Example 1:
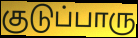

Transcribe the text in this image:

குடுப்பாரு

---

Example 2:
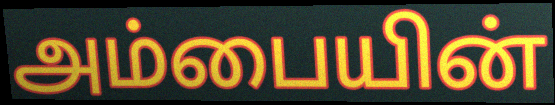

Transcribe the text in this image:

அம்பையின்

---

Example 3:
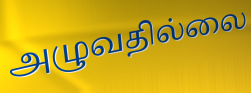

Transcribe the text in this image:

அழுவதில்லை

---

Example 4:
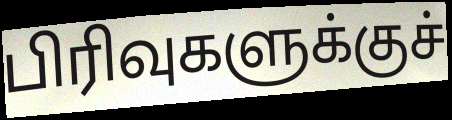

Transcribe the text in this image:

பிரிவுகளுக்குச்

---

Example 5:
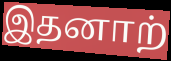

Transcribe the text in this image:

இதனாற்